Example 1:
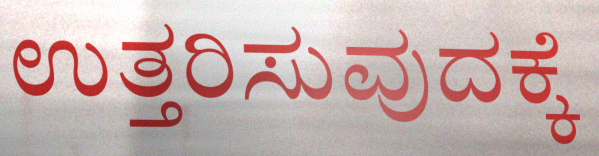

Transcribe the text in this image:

ಉತ್ತರಿಸುವುದಕ್ಕೆ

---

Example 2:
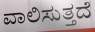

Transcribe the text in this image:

ವಾಲಿಸುತ್ತದೆ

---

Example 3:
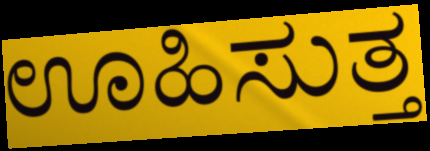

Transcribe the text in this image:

ಊಹಿಸುತ್ತ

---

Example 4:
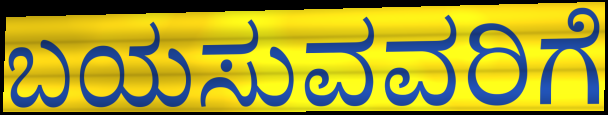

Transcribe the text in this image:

ಬಯಸುವವರಿಗೆ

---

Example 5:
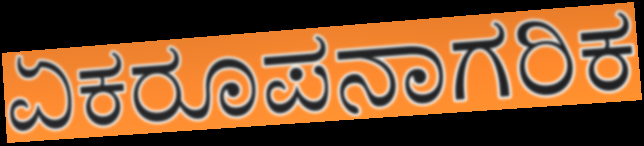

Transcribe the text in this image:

ಏಕರೂಪನಾಗರಿಕ